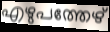
എഴുപത്തേഴ്